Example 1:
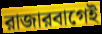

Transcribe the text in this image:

রাজারবাগেই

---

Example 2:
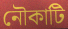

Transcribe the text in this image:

নৌকাটি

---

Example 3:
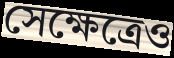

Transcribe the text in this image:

সেক্ষেত্রেও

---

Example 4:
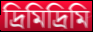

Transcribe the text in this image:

দ্রিমিদ্রিমি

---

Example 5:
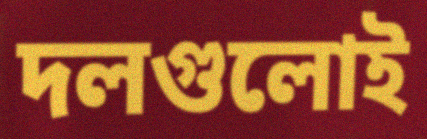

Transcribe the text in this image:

দলগুলোই